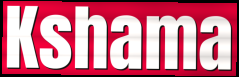
Kshama